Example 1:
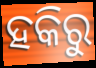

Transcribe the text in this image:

ହକିରୁ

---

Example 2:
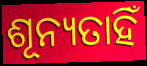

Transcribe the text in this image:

ଶୂନ୍ୟତାହିଁ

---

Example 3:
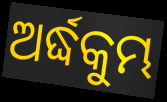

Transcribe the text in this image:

ଅର୍ଦ୍ଧକୁମ୍ଭ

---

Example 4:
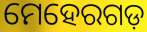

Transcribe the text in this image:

ମେହେରଗଡ଼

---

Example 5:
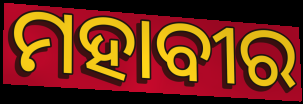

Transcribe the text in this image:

ମହାବୀର